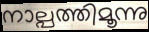
നാല്പത്തിമൂന്നു